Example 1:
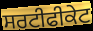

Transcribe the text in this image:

ਸਰਟੀਫੀਕੇਟ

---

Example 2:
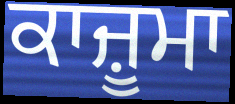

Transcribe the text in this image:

ਕਾਜ਼ੂਮਾ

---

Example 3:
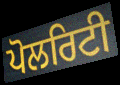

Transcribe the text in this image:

ਪੋਲਰਿਟੀ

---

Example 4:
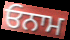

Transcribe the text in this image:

ਓਨਾਮ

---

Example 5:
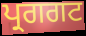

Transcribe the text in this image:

ਪ੍ਰਗਗਟ